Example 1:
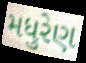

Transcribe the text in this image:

મધુરેણ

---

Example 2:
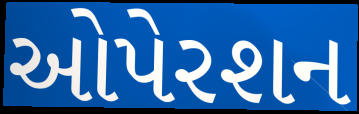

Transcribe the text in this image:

ઓપેરશન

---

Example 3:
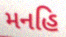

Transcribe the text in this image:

મનહિ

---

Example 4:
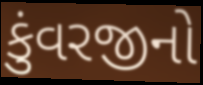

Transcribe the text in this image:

કુંવરજીનો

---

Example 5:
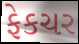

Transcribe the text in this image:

ફેકચર